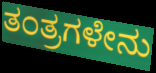
ತಂತ್ರಗಳೇನು